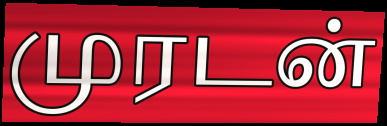
முரடன்